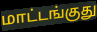
மாட்டங்குது